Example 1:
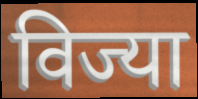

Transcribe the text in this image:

विज्या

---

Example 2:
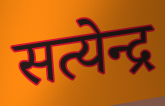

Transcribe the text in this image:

सत्येन्द्र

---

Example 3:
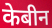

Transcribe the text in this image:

केबीन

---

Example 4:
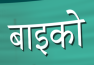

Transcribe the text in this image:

बाइको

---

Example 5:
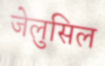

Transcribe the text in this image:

जेलुसिल